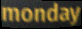
monday